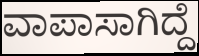
ವಾಪಾಸಾಗಿದ್ದೆ